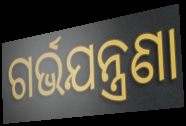
ଗର୍ଭଯନ୍ତ୍ରଣା